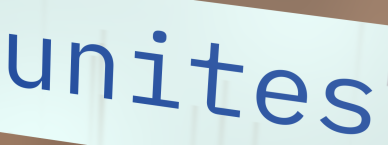
unites